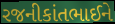
રજનીકાંતભાઈને